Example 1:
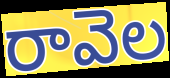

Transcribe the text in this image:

రావెల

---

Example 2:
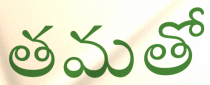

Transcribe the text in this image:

తమతో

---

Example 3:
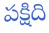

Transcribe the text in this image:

పక్షిది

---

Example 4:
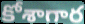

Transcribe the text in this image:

కోశాగార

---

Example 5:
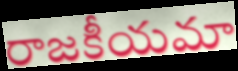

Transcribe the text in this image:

రాజకీయమా